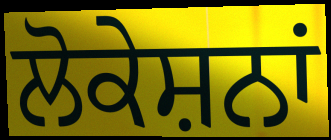
ਲੋਕੇਸ਼ਨਾਂ